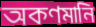
অকণমানি